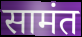
सामंत